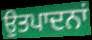
ਉਤਪਾਦਨਾਂ